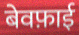
बेवफ़ाई